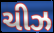
ચીઝ